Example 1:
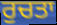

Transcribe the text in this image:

ਰੁਚਤਾ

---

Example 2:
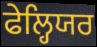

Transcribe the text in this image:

ਫੇਲ੍ਹਿਯਰ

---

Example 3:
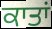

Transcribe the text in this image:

ਕਾਤਾਂ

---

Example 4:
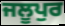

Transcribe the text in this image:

ਜਲੂਪੁਰ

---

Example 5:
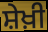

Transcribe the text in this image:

ਸ਼ੇਖ਼ੀ